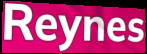
Reynes